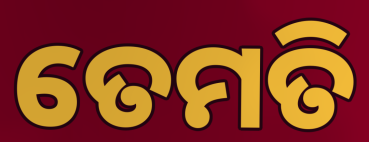
ତେମତି